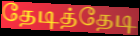
தேடித்தேடி